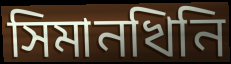
সিমানখিনি